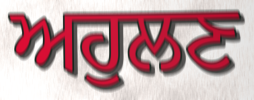
ਅਹੁਲਣ